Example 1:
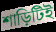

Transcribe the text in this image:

শাড়িটিই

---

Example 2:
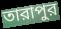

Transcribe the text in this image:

তারাপুর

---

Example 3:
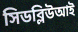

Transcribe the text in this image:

সিডব্লিউআই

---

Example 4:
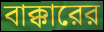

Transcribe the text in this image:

বাক্কারের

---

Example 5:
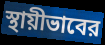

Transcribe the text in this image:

স্থায়ীভাবের